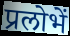
प्रलोभें